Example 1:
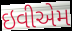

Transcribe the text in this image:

ઇવીએમ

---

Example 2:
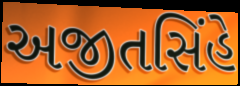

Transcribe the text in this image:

અજીતસિંહે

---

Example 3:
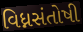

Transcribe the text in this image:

વિધ્નસંતોષી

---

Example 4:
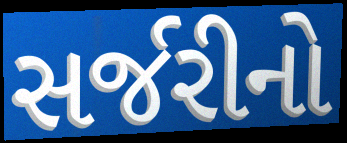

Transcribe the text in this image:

સર્જરીનો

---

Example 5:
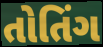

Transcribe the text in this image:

તોતિંગ